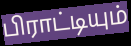
பிராட்டியும்